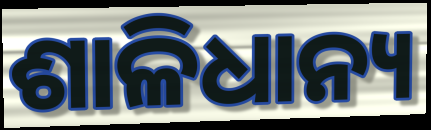
ଶାଳିଧାନ୍ୟ